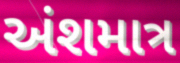
અંશમાત્ર